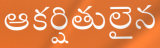
ఆకర్షితులైన